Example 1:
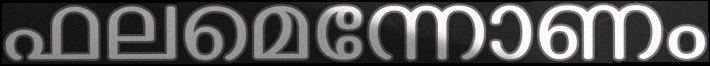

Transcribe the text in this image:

ഫലമെന്നോണം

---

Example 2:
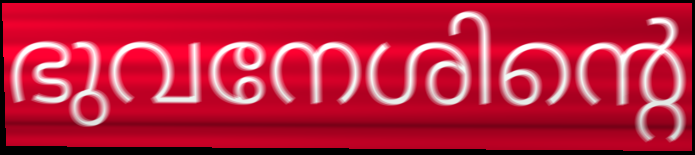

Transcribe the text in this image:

ഭുവനേശിന്റെ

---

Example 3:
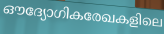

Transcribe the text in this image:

ഔദ്യോഗികരേഖകളിലെ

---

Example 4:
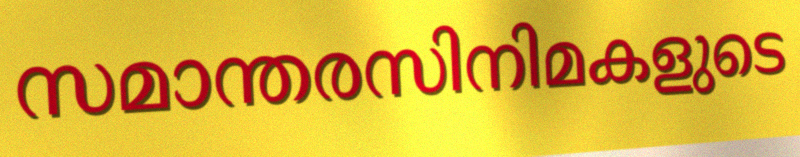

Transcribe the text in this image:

സമാന്തരസിനിമകളുടെ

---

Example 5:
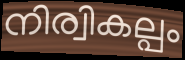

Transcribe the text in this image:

നിര്വികല്പം